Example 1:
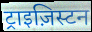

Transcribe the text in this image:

ट्राइज़िस्टन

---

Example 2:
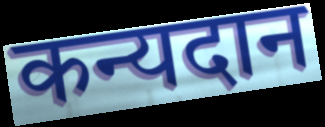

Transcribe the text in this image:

कन्यदान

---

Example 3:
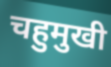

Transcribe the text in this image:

चहुमुखी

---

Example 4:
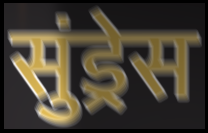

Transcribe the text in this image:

सुंड्रेस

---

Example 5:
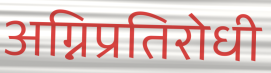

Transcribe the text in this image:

अग्निप्रतिरोधी